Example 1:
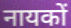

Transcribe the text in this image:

नायकों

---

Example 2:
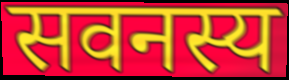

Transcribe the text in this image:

सवनस्य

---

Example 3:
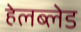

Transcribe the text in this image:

हेलब्लेड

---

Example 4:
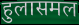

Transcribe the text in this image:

हुलासमल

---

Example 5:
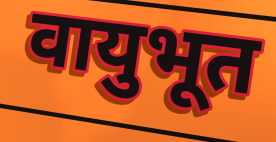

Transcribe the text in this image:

वायुभूत